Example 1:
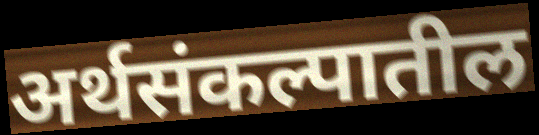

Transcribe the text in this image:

अर्थसंकल्पातील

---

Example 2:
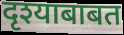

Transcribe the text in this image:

दृश्याबाबत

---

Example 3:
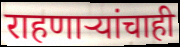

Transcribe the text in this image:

राहणाऱ्यांचाही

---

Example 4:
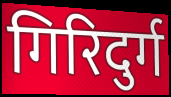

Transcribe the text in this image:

गिरिदुर्ग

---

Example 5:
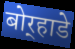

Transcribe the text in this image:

बोर्हाडे